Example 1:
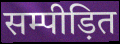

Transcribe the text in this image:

सम्पीड़ित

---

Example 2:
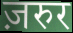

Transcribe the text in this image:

ज़रुर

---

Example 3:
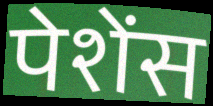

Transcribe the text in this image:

पेशेंस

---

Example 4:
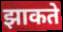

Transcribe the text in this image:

झाकते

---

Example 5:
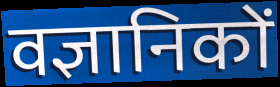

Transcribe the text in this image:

वज्ञानिकों